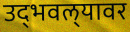
उद्भवल्यावर